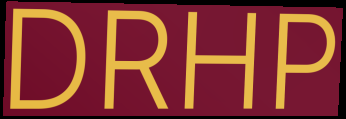
DRHP